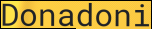
Donadoni